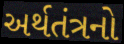
અર્થતંત્રનો